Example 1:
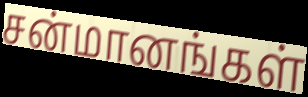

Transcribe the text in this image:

சன்மானங்கள்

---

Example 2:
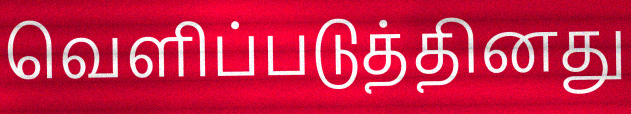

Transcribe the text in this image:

வெளிப்படுத்தினது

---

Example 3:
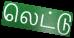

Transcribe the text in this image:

லெட்டு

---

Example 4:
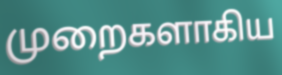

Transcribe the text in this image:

முறைகளாகிய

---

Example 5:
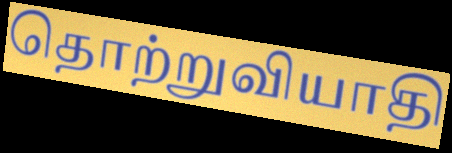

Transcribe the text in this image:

தொற்றுவியாதி